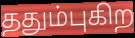
ததும்புகிற